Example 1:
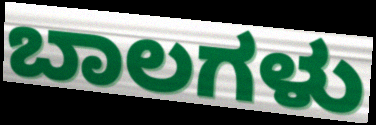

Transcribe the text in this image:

ಬಾಲಗಳು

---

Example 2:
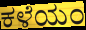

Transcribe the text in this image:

ಕಳೆಯಂ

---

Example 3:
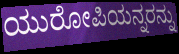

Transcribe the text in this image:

ಯುರೋಪಿಯನ್ನರನ್ನು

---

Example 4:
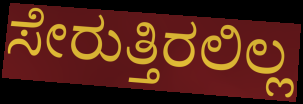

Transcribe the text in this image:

ಸೇರುತ್ತಿರಲಿಲ್ಲ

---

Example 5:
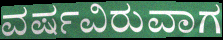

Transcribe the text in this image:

ವರ್ಷವಿರುವಾಗ